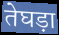
तेघड़ा